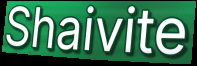
Shaivite